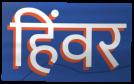
हिंवर